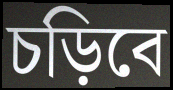
চড়িবে